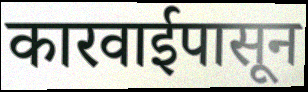
कारवाईपासून